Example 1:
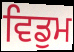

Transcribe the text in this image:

ਵਿਡੁਮ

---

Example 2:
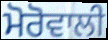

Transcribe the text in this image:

ਮੋਰੋਵਾਲੀ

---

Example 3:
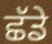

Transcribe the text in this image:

ਛੱਡੇ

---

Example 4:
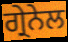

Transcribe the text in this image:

ਗ੍ਰੇਨੇਲ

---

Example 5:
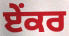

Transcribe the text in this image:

ਏੰਕਰ